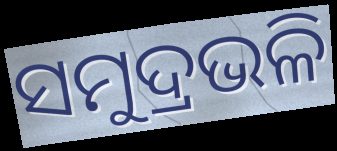
ସମୁଦ୍ରଭଳି